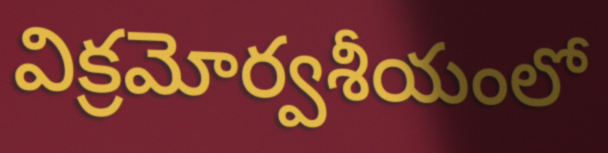
విక్రమోర్వశీయంలో